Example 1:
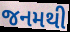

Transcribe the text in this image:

જનમથી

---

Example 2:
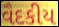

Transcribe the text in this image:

વૈદકીય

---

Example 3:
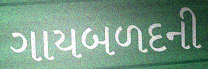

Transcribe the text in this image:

ગાયબળદની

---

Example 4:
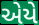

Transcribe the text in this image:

એયે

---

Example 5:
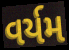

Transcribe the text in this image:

વર્યમ